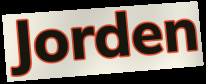
Jorden